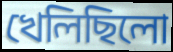
খেলিছিলো